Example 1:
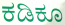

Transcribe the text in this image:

ಕಡಿಕೂ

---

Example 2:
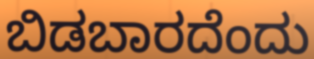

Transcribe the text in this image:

ಬಿಡಬಾರದೆಂದು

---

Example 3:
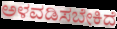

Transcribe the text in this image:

ಅಳವಡಿಸಬೇಕಿದೆ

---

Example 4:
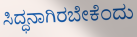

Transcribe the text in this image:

ಸಿದ್ಧನಾಗಿರಬೇಕೆಂದು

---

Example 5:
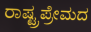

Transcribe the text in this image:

ರಾಷ್ಟ್ರಪ್ರೇಮದ